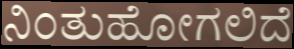
ನಿಂತುಹೋಗಲಿದೆ